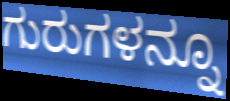
ಗುರುಗಳನ್ನೂ